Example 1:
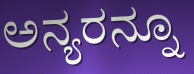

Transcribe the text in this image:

ಅನ್ಯರನ್ನೂ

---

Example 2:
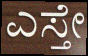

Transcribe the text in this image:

ಎಸ್ತೇ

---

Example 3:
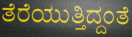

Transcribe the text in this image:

ತೆರೆಯುತ್ತಿದ್ದಂತೆ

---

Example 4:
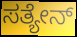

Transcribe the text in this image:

ಸತ್ಯೇನ್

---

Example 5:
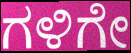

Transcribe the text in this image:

ಗಳಿಗೇ